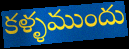
కళ్ళముందు